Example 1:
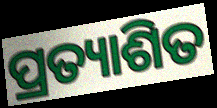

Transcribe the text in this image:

ପ୍ରତ୍ୟାଶିତ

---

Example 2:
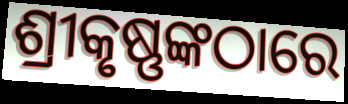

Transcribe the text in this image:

ଶ୍ରୀକୃଷ୍ଣଙ୍କଠାରେ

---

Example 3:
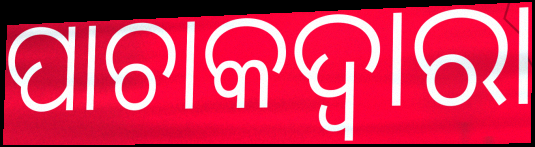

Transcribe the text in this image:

ପାଚାକଦ୍ଵାରା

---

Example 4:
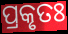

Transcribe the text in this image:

ପ୍ରକୃତଃ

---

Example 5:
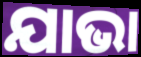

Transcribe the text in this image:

ଯାଭା